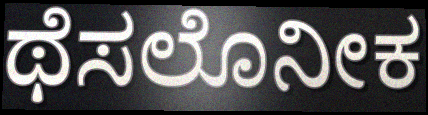
ಥೆಸಲೊನೀಕ